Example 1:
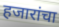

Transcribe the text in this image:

हजारांचा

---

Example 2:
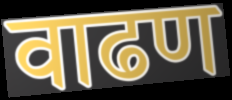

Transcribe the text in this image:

वाढण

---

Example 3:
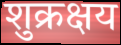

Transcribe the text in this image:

शुक्रक्षय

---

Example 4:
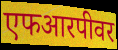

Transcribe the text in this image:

एफआरपीवर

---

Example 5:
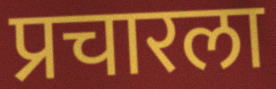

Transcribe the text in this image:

प्रचारला